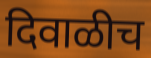
दिवाळीच